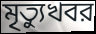
মৃত্যুখবর